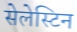
सेलेस्टिन